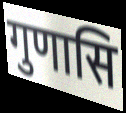
गुणासि